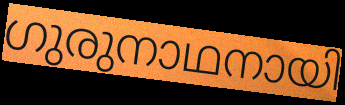
ഗുരുനാഥനായി